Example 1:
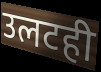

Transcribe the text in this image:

उलटही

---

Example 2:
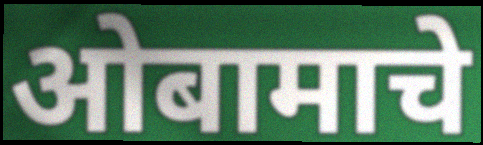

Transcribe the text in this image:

ओबामाचे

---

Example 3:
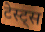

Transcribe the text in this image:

टेस्ट्स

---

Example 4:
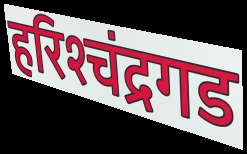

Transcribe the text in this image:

हरिश्चंद्रगड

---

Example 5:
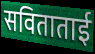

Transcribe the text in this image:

सविताताई